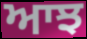
ਆਝ